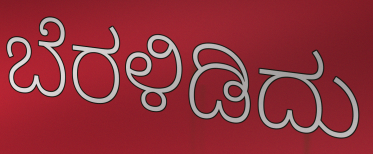
ಬೆರಳಿಡಿದು